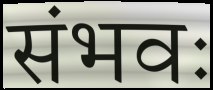
संभवः